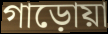
গাড়োয়া